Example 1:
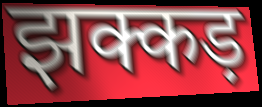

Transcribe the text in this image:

झक्कड़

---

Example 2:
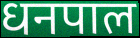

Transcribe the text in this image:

धनपाल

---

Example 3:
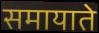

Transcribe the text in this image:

समायाते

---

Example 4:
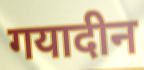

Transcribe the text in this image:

गयादीन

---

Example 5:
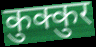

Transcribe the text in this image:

कुक्कुर